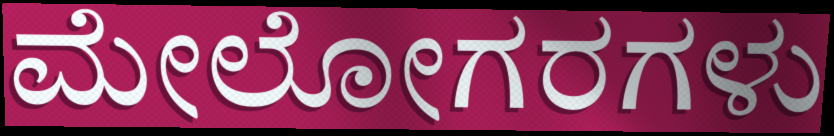
ಮೇಲೋಗರಗಳು